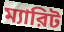
ম্যারিট